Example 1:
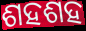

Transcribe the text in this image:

ଶହଶହ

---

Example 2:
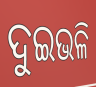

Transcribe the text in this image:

ଦୁଇଭଳି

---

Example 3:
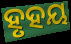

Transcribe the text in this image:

ହୃହୟ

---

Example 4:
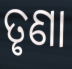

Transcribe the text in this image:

ତୃଣା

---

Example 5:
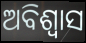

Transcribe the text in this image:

ଅବିଶ୍ବାସ